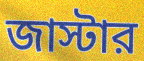
জাস্টার